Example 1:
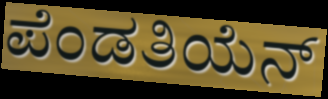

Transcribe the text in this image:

ಪೆಂಡತಿಯೆನ್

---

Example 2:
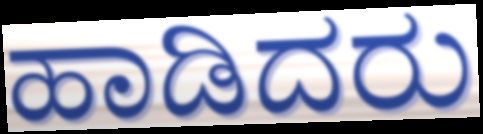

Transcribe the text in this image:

ಹಾಡಿದರು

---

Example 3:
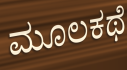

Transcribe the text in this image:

ಮೂಲಕಥೆ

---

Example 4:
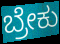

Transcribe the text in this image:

ಬ್ರೇಕು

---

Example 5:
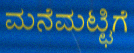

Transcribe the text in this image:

ಮನೆಮಟ್ಟಿಗೆ